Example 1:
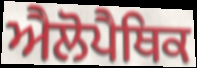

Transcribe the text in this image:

ਐਲੋਪੈਥਿਕ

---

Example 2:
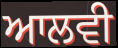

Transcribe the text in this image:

ਆਲਵੀ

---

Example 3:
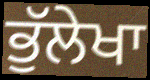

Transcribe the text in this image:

ਭੁੱਲੇਖਾ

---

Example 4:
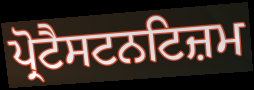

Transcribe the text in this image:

ਪ੍ਰੋਟੈਸਟਨਟਿਜ਼ਮ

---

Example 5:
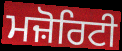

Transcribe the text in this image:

ਮਜ਼ੋਰਿਟੀ